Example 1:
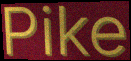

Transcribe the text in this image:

Pike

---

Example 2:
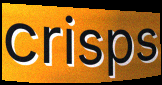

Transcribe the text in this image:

crisps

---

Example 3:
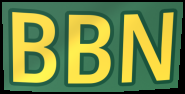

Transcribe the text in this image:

BBN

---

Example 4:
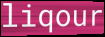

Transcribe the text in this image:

liqour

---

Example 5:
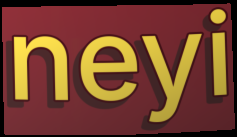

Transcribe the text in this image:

neyi